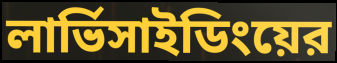
লার্ভিসাইডিংয়ের